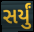
સર્યું